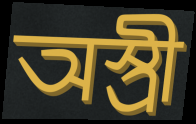
অস্ত্রী